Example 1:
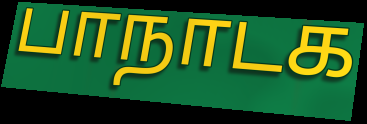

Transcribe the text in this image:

பாநாடக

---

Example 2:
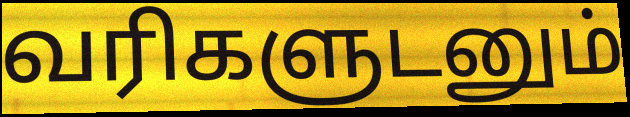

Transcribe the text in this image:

வரிகளுடனும்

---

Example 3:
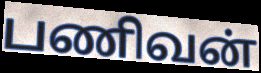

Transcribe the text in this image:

பணிவன்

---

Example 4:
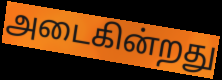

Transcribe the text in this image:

அடைகின்றது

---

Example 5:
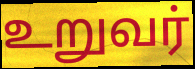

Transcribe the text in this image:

உறுவர்